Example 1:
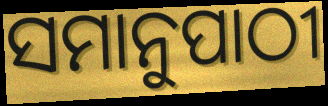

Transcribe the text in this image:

ସମାନୁପାଠୀ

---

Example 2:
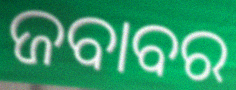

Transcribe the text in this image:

ଜବାବର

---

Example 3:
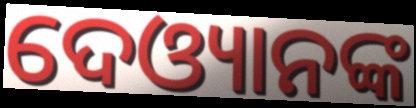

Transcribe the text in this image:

ଦେଓ୍ୟାନଙ୍କ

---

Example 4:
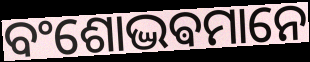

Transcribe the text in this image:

ବଂଶୋଦ୍ଭଵମାନେ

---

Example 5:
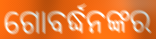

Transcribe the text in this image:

ଗୋବର୍ଦ୍ଧନଙ୍କର